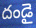
దండై